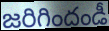
జరిగిందండీ